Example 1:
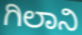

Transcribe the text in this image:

ಗಿಲಾನಿ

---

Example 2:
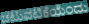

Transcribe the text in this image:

ಚಟುವಟಿಕೆಯೆಂದು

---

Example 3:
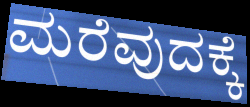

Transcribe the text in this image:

ಮರೆವುದಕ್ಕೆ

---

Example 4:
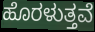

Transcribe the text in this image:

ಹೊರಳುತ್ತವೆ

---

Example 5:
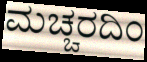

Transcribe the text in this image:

ಮಚ್ಚರದಿಂ